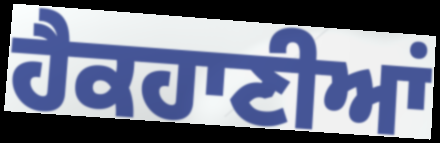
ਹੈਕਹਾਣੀਆਂ